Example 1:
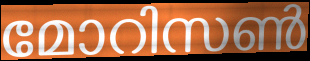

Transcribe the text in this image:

മോറിസൺ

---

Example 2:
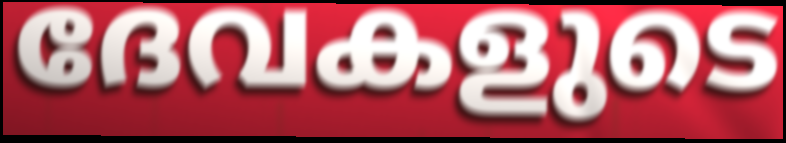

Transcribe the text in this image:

ദേവകളുടെ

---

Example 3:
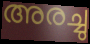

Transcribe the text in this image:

അരച്ചു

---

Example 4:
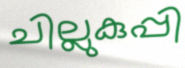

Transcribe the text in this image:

ചില്ലുകുപ്പി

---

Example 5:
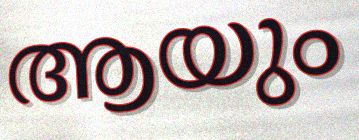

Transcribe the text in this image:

ആയും